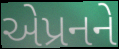
એપ્રનને